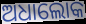
ଅଧାଲୋକ